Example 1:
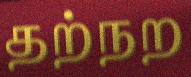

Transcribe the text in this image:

தற்நற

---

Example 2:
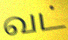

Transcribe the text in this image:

வட்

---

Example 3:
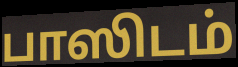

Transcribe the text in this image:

பாஸிடம்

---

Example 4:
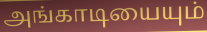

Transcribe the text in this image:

அங்காடியையும்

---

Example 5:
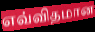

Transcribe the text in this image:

எவ்விதமான